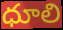
ధూలి